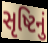
સૃષ્ટિનું